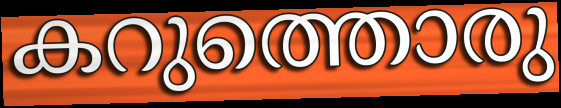
കറുത്തൊരു